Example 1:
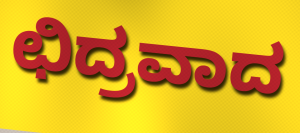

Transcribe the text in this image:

ಛಿದ್ರವಾದ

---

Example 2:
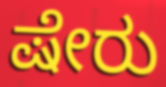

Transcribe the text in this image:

ಷೇರು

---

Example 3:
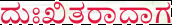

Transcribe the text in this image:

ದುಃಖಿತರಾದಾಗ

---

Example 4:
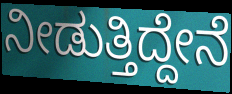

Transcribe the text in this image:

ನೀಡುತ್ತಿದ್ದೇನೆ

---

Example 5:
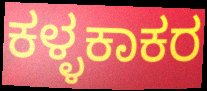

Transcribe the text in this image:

ಕಳ್ಳಕಾಕರ